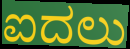
ಐದಲು